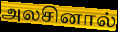
அலசினால்